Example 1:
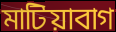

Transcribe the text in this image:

মাটিয়াবাগ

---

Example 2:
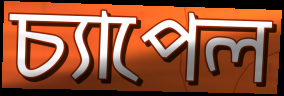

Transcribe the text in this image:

চ্যাপেল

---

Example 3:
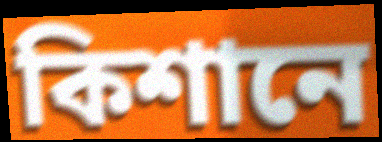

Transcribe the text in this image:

কিশানে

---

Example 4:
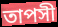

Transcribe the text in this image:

তাপসী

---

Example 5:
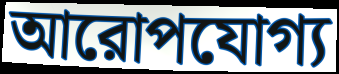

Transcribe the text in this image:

আরোপযোগ্য